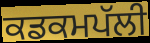
ਕਡਕਮਪੱਲੀ